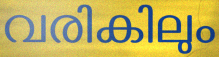
വരികിലും